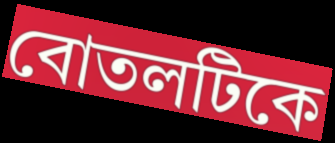
বোতলটিকে